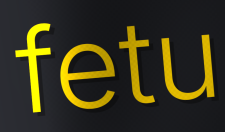
fetu